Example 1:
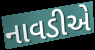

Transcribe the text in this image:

નાવડીએ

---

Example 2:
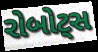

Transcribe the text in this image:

રોબોટ્સ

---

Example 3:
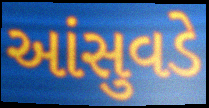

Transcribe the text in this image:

આંસુવડે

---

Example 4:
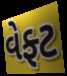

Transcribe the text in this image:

વેફ્ટ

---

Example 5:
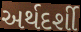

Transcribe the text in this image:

અર્થદર્શી